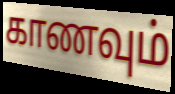
காணவும்